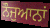
ਨੌਜੁਆਨਾਂ